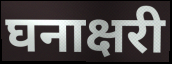
घनाक्षरी